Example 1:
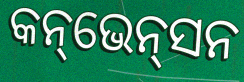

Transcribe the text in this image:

କନ୍‌ଭେନ୍‌ସନ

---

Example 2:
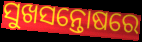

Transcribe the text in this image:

ସୁଖସନ୍ତୋଷରେ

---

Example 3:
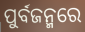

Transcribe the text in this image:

ପୁର୍ବଜନ୍ମରେ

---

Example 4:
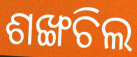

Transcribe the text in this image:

ଶଙ୍ଖଚିଲ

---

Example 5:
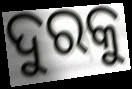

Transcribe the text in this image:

ଦୁରକୁ